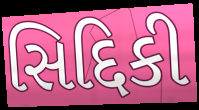
સિદ્દિકી